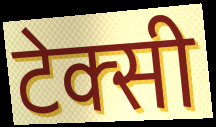
टेक्‍सी